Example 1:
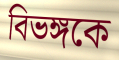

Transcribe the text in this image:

বিভঙ্গকে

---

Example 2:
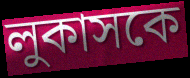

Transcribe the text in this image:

লুকাসকে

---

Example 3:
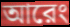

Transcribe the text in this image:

আরেং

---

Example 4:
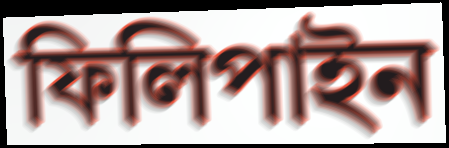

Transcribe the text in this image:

ফিলিপাইন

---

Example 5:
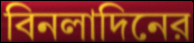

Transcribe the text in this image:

বিনলাদিনের